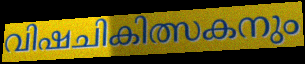
വിഷചികിത്സകനും